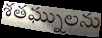
శతఘ్నులను